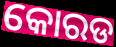
କୋରଡ